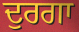
ਦੁਰਗਾ